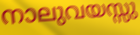
നാലുവയസ്സു